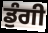
ਡੁੰਗੀ